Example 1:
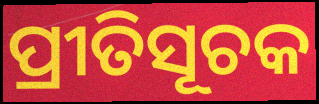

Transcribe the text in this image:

ପ୍ରୀତିସୂଚକ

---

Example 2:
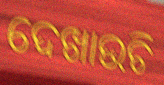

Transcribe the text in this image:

ଦେଖାଉଚି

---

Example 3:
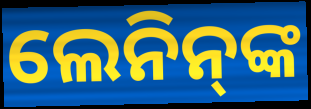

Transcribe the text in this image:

ଲେନିନ୍‌ଙ୍କ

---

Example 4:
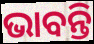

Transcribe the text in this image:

ଭାବନ୍ତି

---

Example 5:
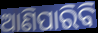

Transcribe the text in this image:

ଆଣିପାରିବି